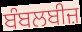
ਬੰਬਲਬੀਜ਼